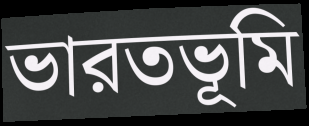
ভারতভূমি